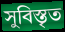
সুবিস্তৃত